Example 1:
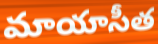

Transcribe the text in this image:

మాయాసీత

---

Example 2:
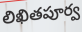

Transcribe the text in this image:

లిఖితపూర్వ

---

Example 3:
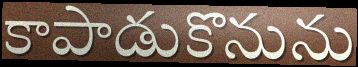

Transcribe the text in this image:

కాపాడుకొనును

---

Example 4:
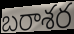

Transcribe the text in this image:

బరాశర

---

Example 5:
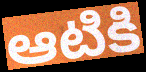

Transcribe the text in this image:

ఆటికి